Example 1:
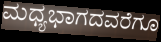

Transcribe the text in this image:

ಮಧ್ಯಭಾಗದವರೆಗೂ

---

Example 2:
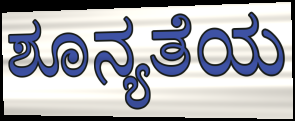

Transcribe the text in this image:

ಶೂನ್ಯತೆಯ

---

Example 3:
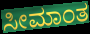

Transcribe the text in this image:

ಸೀಮಾಂತ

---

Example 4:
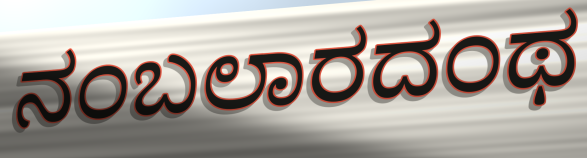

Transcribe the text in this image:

ನಂಬಲಾರದಂಥ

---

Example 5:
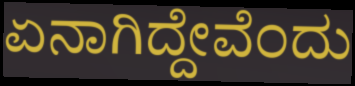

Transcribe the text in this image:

ಏನಾಗಿದ್ದೇವೆಂದು